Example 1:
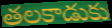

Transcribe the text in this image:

తలకాడుకు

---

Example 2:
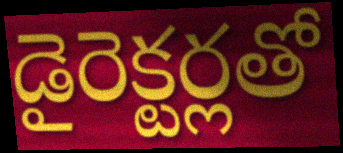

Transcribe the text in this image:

డైరెక్టర్లతో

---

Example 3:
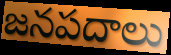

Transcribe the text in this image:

జనపదాలు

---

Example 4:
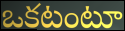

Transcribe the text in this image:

ఒకటంటూ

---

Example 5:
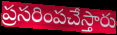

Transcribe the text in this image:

ప్రసరింపచేస్తారు